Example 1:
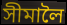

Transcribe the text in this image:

সীমালৈ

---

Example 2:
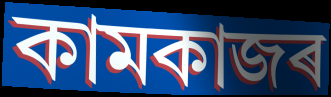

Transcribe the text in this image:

কামকাজৰ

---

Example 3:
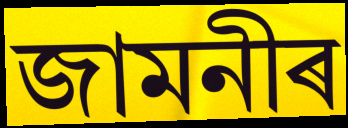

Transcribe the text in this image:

জামনীৰ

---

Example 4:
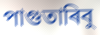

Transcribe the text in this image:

পাগুতাৰিবু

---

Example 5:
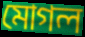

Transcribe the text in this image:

মোগল